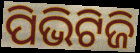
ପିଭିଟିଜି